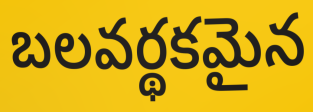
బలవర్థకమైన